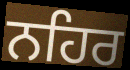
ਨਹਿਰ